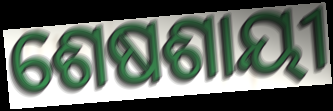
ଶେଷଶାୟୀ